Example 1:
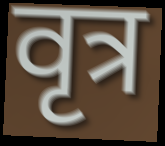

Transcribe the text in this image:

वृत्र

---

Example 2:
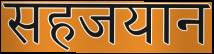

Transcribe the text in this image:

सहजयान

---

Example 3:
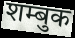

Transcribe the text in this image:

शम्बुक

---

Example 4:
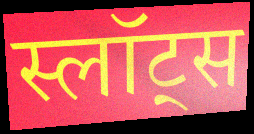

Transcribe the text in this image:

स्लॉट्स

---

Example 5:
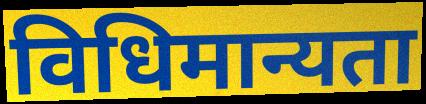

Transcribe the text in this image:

विधिमान्यता